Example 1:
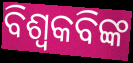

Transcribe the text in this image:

ବିଶ୍ୱକବିଙ୍କ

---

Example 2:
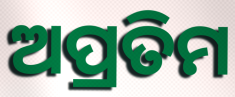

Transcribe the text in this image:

ଅପ୍ରତିମ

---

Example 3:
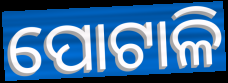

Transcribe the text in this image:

ପୋଟାଳି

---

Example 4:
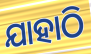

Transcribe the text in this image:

ଯାହାଠି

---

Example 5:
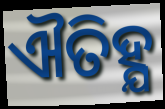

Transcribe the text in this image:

ଐତିହ୍ଯ